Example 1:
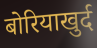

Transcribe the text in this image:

बोरियाखुर्द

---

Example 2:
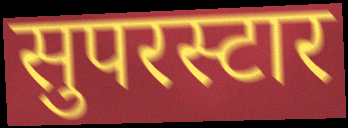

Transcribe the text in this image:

सुपरस्टार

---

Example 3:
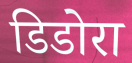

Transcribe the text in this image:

डिडोरा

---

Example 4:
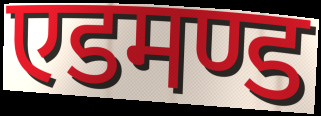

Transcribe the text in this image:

एडमण्ड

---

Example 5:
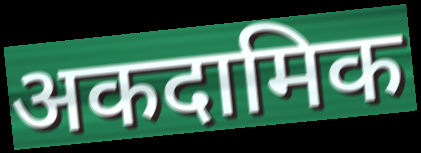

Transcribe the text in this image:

अकदामिक